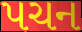
પચન